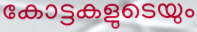
കോട്ടകളുടെയും